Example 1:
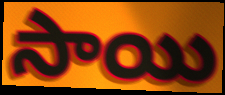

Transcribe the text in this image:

సాయి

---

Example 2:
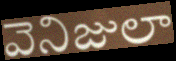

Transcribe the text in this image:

వెనిజులా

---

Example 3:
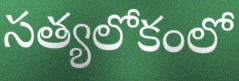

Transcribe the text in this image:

సత్యలోకంలో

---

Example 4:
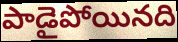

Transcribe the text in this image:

పాడైపోయినది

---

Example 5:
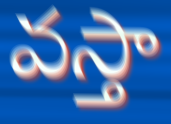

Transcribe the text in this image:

వస్తా